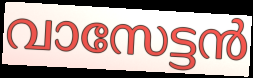
വാസേട്ടൻ